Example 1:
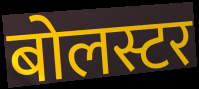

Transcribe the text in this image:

बोलस्टर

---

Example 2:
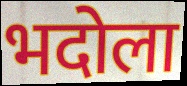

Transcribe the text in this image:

भदोला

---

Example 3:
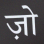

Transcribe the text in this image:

ज़ो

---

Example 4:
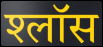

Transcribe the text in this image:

श्लॉस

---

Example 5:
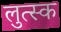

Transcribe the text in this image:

लुत्स्क